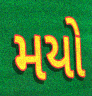
મયો